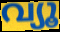
വ്യൂ